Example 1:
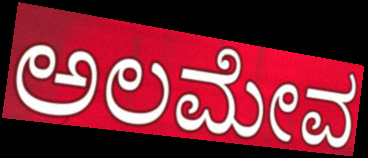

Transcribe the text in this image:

ಅಲಮೇವ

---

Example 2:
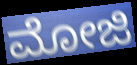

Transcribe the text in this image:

ಮೋಜಿ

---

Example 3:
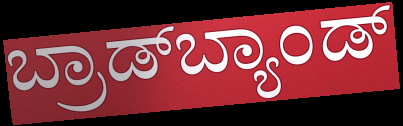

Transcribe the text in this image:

ಬ್ರಾಡ್‌ಬ್ಯಾಂಡ್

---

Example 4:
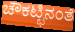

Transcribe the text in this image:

ಚೌಕಟ್ಟಿನಂತೆ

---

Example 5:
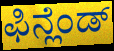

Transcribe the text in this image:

ಫಿನ್ಲೆಂಡ್